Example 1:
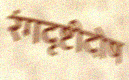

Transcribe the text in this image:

रंगदृष्टीदोष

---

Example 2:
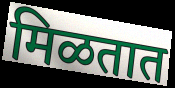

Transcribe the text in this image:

मिळतात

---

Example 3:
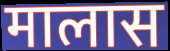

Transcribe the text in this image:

मालास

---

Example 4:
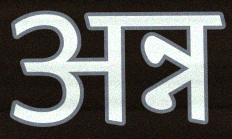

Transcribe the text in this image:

अन्न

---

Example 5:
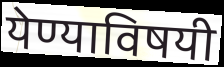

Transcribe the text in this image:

येण्याविषयी